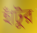
হাঁটুর